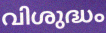
വിശുദ്ധം